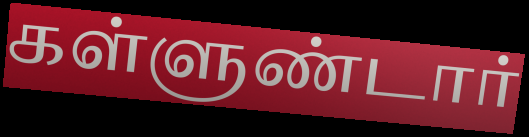
கள்ளுண்டார்